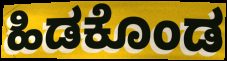
ಹಿಡಕೊಂಡ